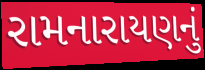
રામનારાયણનું